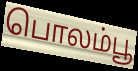
பொலம்பூ